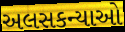
અલસકન્યાઓ